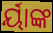
ର୍ୟାଙ୍କ